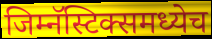
जिम्नॅस्टिक्समध्येच